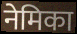
नेमिका